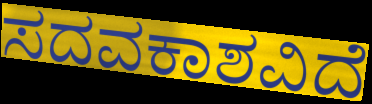
ಸದವಕಾಶವಿದೆ